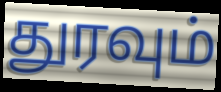
துரவும்